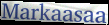
Markaasaa